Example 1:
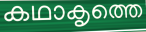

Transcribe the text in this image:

കഥാകൃത്തെ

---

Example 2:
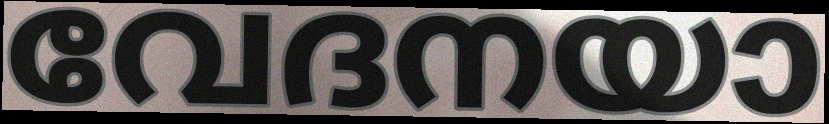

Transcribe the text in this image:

വേദനയാ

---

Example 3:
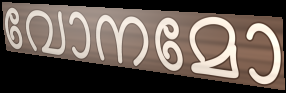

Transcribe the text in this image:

വോനമോ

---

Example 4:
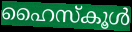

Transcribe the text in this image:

ഹൈസ്കൂൾ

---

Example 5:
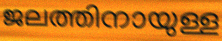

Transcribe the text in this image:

ജലത്തിനായുള്ള